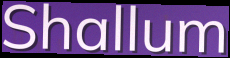
Shallum